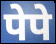
पेपे